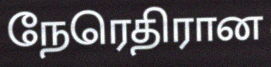
நேரெதிரான